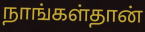
நாங்கள்தான்